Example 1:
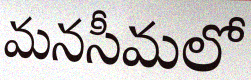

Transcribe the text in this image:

మనసీమలో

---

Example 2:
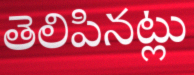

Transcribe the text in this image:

తెలిపినట్లు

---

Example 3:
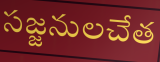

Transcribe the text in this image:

సజ్జనులచేత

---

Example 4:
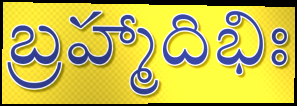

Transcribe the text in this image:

బ్రహ్మాదిభిః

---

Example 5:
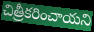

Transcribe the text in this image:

చిత్రీకరించాయని